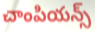
చాంపియన్స్